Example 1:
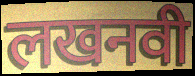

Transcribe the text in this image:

लखनवी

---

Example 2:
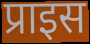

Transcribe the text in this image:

प्राइस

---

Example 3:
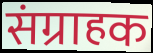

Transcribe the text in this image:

संग्राहक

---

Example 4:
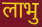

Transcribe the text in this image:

लाभु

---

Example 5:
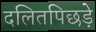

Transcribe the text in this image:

दलितपिछड़े